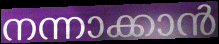
നന്നാക്കാൻ